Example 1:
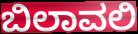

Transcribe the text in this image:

ಬಿಲಾವಲಿ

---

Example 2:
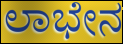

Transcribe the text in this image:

ಲಾಭೇನ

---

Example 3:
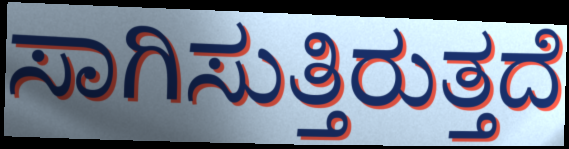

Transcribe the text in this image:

ಸಾಗಿಸುತ್ತಿರುತ್ತದೆ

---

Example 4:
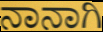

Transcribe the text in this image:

ನಾನಾಗಿ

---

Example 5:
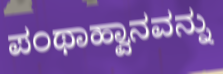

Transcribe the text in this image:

ಪಂಥಾಹ್ವಾನವನ್ನು